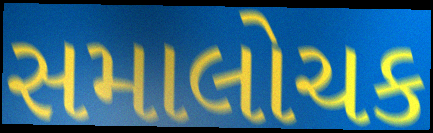
સમાલોચક